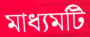
মাধ্যমটি